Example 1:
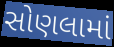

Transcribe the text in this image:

સોણલામાં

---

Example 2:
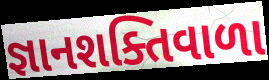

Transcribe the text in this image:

જ્ઞાનશક્તિવાળા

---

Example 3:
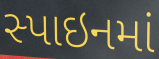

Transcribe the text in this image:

સ્પાઇનમાં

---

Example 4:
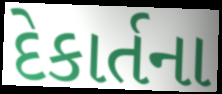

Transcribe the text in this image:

દેકાર્તના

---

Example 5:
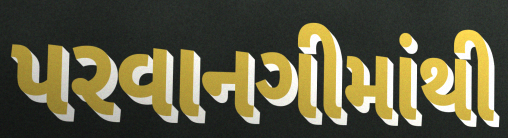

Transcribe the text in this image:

પરવાનગીમાંથી